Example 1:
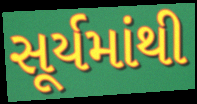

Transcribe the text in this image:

સૂર્યમાંથી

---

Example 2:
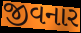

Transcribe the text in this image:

જીવનાર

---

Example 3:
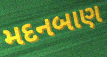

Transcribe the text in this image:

મદનબાણ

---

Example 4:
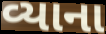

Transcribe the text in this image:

વ્યાના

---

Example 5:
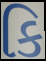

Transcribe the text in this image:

કિ